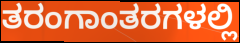
ತರಂಗಾಂತರಗಳಲ್ಲಿ